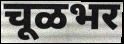
चूळभर